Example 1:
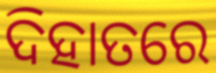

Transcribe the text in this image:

ଦିହାତରେ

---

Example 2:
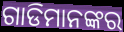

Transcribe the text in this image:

ଗାଡିମାନଙ୍କର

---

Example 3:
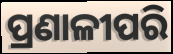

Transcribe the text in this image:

ପ୍ରଣାଳୀପରି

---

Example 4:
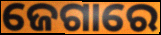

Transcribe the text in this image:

ଜେଗାରେ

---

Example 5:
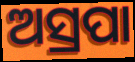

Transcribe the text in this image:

ଅସ୍ରପା